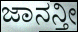
ಜಾನನ್ತೀ